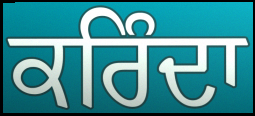
ਕਰਿੰਦਾ